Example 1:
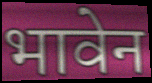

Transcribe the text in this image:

भावेन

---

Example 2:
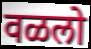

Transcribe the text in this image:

वळलो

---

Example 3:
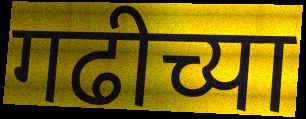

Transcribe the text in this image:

गढीच्या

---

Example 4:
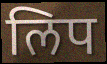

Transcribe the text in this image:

लिप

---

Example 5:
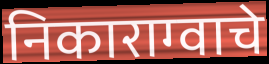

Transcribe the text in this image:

निकाराग्वाचे